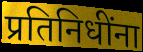
प्रतिनिधींना